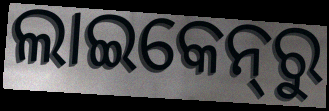
ଲାଇକେନ୍‌ରୁ